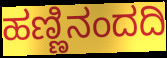
ಹಣ್ಣಿನಂದದಿ